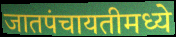
जातपंचायतीमध्ये